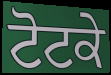
ਟੋਟਕੇ